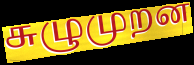
சுழுமுறன